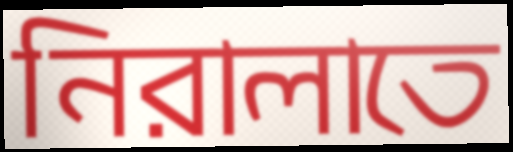
নিরালাতে